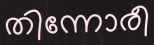
തിന്നോരീ